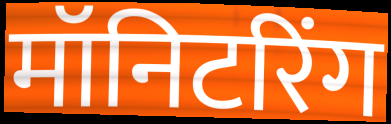
मॉनिटरिंग